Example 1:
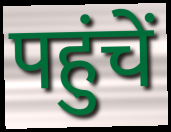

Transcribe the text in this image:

पहुंचें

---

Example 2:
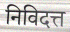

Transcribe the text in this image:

निविदत्त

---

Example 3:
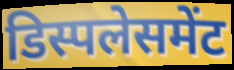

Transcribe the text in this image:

डिस्पलेसमेंट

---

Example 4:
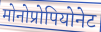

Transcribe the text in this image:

मोनोप्रोपियोनेट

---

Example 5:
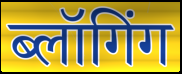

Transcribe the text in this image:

ब्लॉगिंग